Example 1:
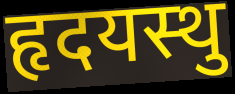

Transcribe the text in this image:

हृदयस्थु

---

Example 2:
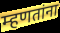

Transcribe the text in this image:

म्हणतांना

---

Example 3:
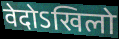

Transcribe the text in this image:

वेदोऽखिलो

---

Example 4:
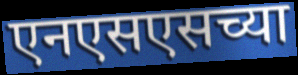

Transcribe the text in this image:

एनएसएसच्या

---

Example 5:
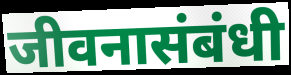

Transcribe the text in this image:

जीवनासंबंधी